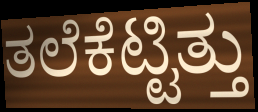
ತಲೆಕೆಟ್ಟಿತ್ತು